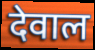
देवाल